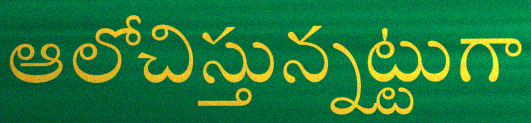
ఆలోచిస్తున్నట్టుగా